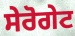
ਸੇਰੋਗੇਟ